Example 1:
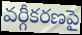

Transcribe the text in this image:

వర్గీకరణపై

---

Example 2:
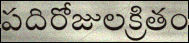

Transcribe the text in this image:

పదిరోజులక్రితం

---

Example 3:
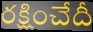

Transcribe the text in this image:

రక్షించేదీ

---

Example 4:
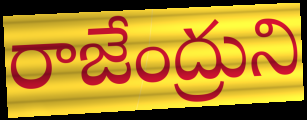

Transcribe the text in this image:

రాజేంద్రుని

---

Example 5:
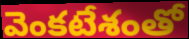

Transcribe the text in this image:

వెంకటేశంతో